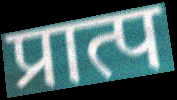
प्रात्प